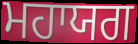
ਮਹਾਯਗ